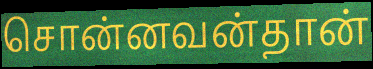
சொன்னவன்தான்